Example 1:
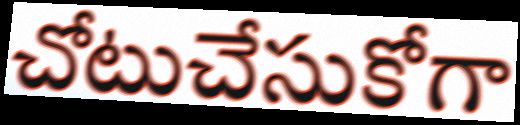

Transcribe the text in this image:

చోటుచేసుకోగా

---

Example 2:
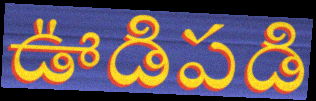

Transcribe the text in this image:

ఊడిపడి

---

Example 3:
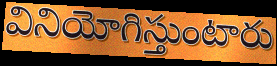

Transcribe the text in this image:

వినియోగిస్తుంటారు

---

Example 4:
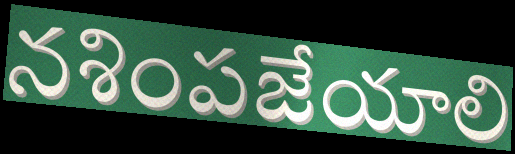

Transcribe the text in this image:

నశింపజేయాలి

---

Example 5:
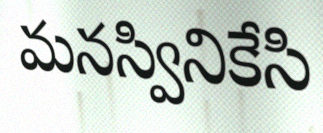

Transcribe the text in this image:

మనస్వినికేసి